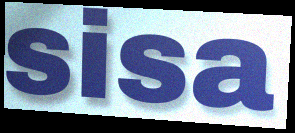
sisa